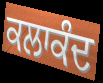
ਕਲਾਕੰਦ